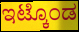
ಇಟ್ಕೊಂಡ